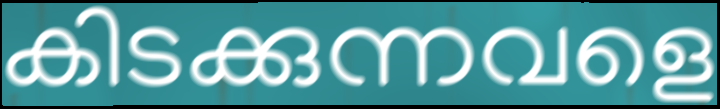
കിടക്കുന്നവളെ